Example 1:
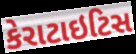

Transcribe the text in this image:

કેરાટાઇટિસ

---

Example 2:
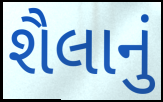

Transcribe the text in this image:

શૈલાનું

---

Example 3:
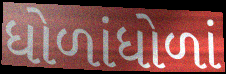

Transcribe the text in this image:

ધોળાંધોળાં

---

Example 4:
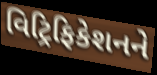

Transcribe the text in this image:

વિટ્રિફિકેશનને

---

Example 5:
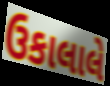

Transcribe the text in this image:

ઉકાલાલે